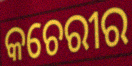
କଚେରୀର